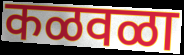
कळवळा